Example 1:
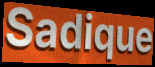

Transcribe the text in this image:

Sadique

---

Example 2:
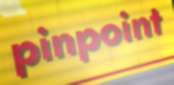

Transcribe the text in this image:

pinpoint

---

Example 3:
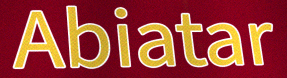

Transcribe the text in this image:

Abiatar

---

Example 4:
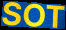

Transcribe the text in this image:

SOT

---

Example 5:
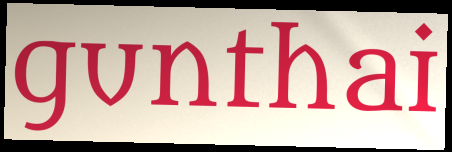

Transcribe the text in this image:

gunthai